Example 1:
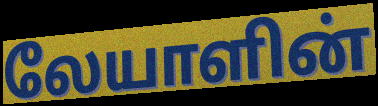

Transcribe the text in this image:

லேயாளின்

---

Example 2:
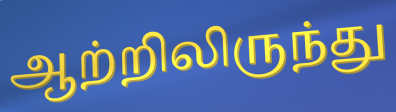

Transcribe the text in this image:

ஆற்றிலிருந்து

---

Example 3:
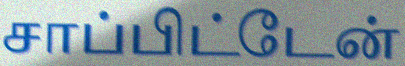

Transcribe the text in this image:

சாப்பிட்டேன்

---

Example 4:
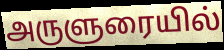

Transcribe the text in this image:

அருளுரையில்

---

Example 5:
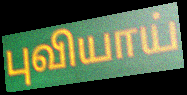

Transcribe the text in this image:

புவியாய்